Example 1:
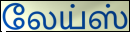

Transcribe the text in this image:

லேய்ஸ்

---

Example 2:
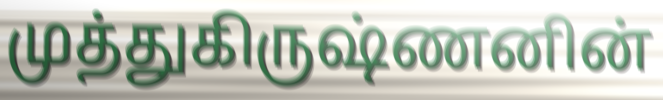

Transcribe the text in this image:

முத்துகிருஷ்ணனின்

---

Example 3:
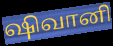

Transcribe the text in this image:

ஷிவானி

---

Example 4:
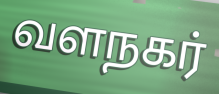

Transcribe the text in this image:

வளநகர்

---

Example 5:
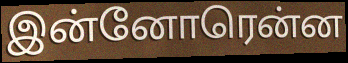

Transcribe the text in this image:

இன்னோரென்ன